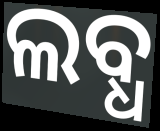
ଲବ୍ଧ